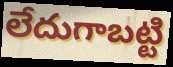
లేదుగాబట్టి